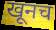
खूनच